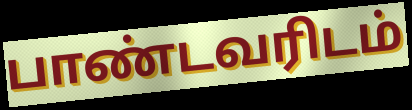
பாண்டவரிடம்